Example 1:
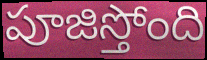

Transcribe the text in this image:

పూజిస్తోంది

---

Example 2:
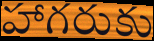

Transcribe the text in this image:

హాగరుకు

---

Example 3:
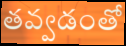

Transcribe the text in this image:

తవ్వడంతో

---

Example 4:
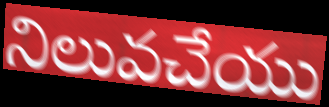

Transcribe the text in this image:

నిలువచేయు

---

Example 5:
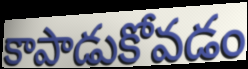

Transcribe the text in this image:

కాపాడుకోవడం